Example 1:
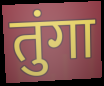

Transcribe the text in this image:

तुंगा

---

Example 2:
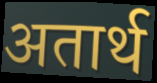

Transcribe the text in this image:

अतार्थ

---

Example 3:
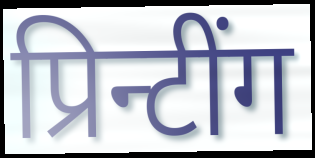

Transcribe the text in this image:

प्रिन्टींग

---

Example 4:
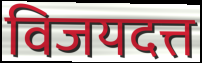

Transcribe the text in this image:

विजयदत्त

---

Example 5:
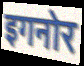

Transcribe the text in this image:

इगनोर